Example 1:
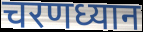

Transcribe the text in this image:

चरणध्यान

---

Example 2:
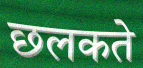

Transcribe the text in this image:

छलकते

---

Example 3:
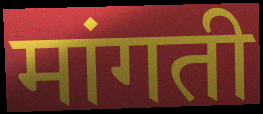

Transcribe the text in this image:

मांगती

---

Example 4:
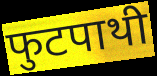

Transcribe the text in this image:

फुटपाथी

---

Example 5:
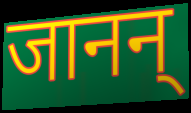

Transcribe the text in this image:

जानन्